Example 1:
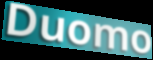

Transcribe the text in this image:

Duomo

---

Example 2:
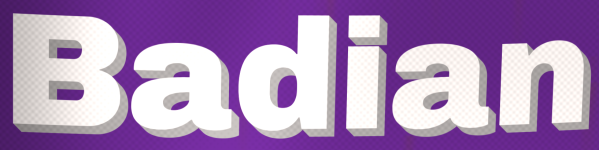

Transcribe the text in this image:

Badian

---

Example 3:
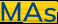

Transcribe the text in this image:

MAs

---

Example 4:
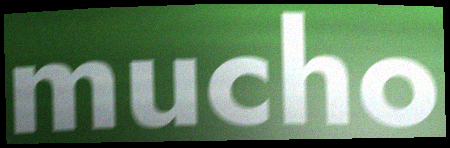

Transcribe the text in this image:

mucho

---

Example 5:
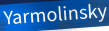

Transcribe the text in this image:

Yarmolinsky